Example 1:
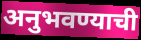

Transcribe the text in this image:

अनुभवण्याची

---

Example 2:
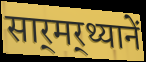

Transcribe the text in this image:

सार्मर्थ्यानें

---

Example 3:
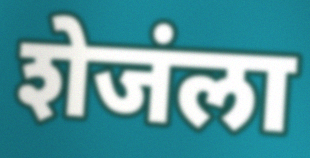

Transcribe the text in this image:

शेजंला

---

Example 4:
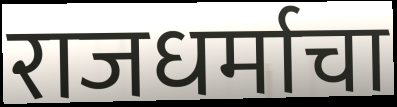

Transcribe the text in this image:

राजधर्माचा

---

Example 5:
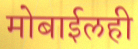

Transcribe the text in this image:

मोबाईलही